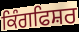
ਕਿੰਗਫਿਸ਼ਰ